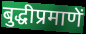
बुद्धीप्रमाणें